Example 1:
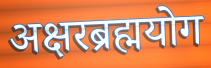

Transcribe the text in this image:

अक्षरब्रह्मयोग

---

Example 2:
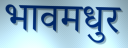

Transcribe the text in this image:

भावमधुर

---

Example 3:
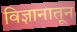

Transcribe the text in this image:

विज्ञानातून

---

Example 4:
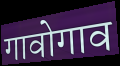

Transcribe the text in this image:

गावोगाव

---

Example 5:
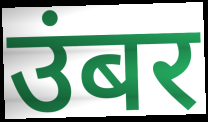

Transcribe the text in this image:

उंबर